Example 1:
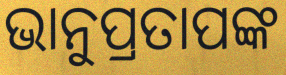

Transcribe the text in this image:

ଭାନୁପ୍ରତାପଙ୍କ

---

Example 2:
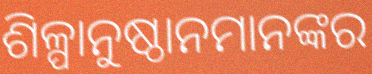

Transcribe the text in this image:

ଶିଳ୍ପାନୁଷ୍ଠାନମାନଙ୍କର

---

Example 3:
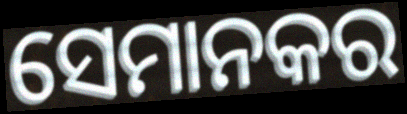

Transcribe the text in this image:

ସେମାନକର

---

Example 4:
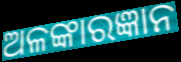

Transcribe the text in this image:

ଅଳଙ୍କାରଜ୍ଞାନ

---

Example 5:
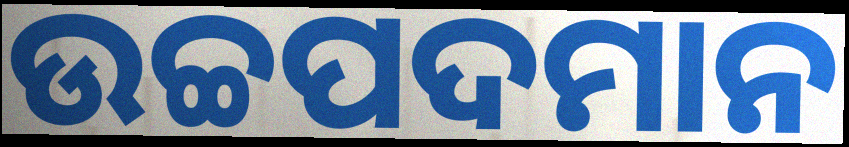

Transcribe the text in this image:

ଉଚ୍ଚପଦମାନ